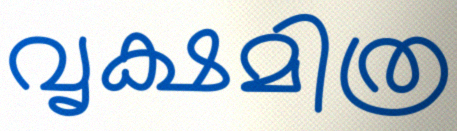
വൃക്ഷമിത്ര